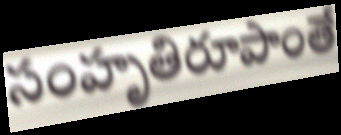
సంహృతిరూపాంతే